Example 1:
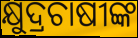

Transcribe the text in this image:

କ୍ଷୁଦ୍ରଚାଷୀଙ୍କ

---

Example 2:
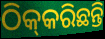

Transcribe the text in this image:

ଠିକ୍‌କରିଛନ୍ତି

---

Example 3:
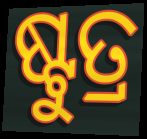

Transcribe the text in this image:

ଷ୍ଟୁତ୍ର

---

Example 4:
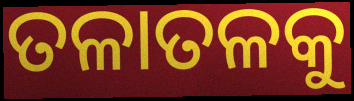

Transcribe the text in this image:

ତଳାତଳକୁ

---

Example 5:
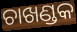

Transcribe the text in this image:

ଚାଖଣ୍ଡକ